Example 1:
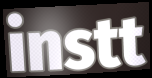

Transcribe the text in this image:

instt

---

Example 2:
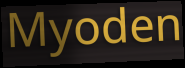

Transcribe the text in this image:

Myoden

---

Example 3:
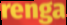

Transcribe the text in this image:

renga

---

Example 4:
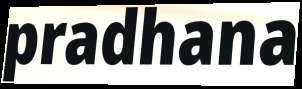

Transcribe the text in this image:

pradhana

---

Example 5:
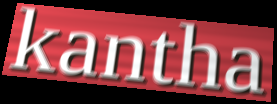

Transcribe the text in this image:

kantha